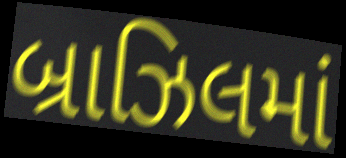
બ્રાઝિલમાં